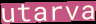
utarva